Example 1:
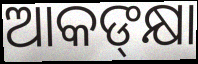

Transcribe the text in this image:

ଆକଙ୍‍କ୍ଷା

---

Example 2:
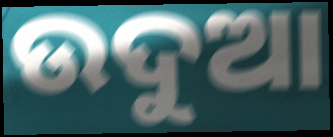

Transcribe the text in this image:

ଉଦୁଆ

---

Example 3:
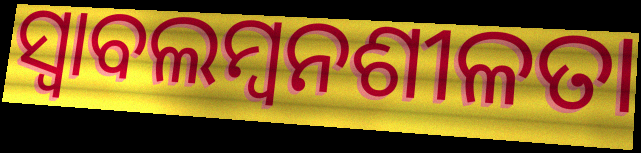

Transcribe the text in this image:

ସ୍ୱାବଲମ୍ବନଶୀଳତା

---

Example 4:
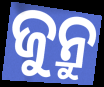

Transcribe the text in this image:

ଜୁନ୍ରୁ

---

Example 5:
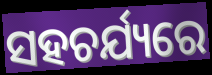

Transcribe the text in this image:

ସହଚର୍ଯ୍ୟରେ